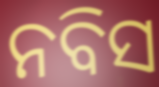
ନବିସ